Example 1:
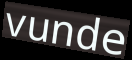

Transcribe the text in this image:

vunde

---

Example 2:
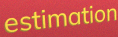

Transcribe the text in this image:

estimation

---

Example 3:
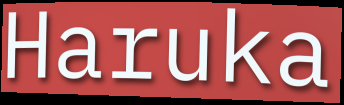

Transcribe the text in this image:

Haruka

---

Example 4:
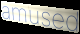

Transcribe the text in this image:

amused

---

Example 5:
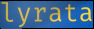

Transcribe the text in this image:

lyrata